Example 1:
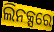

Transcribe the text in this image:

ଲିନକ୍ସରେ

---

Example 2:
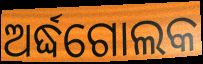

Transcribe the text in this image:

ଅର୍ଦ୍ଧଗୋଲକ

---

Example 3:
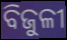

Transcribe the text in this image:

ବିଜୁଳୀ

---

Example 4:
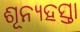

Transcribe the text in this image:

ଶୂନ୍ୟହସ୍ତା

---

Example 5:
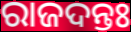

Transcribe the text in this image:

ରାଜଦନ୍ତଃ